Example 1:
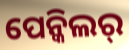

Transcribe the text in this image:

ପେନ୍କିଲର୍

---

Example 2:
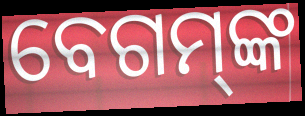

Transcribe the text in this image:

ବେଗମ୍‌ଙ୍କ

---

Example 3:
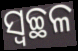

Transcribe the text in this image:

ସ୍ବଚ୍ଛଳ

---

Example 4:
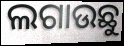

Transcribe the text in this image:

ଲଗାଉଛୁ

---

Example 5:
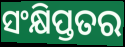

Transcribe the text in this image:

ସଂକ୍ଷିପ୍ତତର